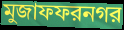
মুজাফফরনগর